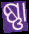
ଷ୍ଣା